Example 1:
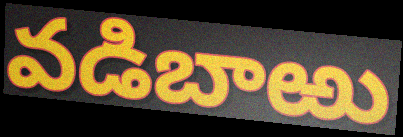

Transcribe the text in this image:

వడిబాఱు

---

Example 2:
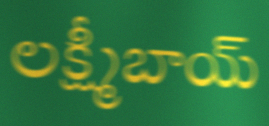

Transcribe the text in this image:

లక్ష్మీబాయ్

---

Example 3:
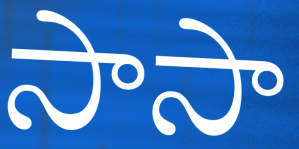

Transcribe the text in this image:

సాసా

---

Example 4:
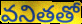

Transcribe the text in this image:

వనితతో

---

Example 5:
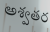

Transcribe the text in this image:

అశ్వతర